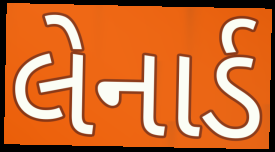
લેનાર્ડ